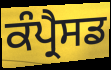
ਕੰਪ੍ਰੈਸਡ